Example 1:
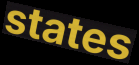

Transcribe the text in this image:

states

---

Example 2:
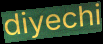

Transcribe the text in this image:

diyechi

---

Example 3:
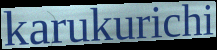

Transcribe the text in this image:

karukurichi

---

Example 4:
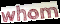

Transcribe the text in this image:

whom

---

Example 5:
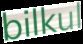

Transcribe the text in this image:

bilkul